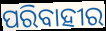
ପରିବାହୀର